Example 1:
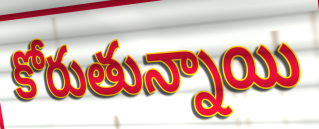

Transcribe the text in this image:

కోరుతున్నాయి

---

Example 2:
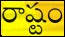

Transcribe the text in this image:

రాష్టం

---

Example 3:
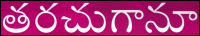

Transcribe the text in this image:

తరచుగానూ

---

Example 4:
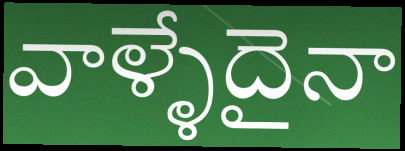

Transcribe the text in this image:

వాళ్ళేదైనా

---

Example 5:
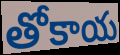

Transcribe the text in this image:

తోకాయ